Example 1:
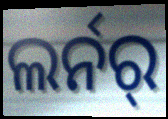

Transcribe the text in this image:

ଲର୍ନର୍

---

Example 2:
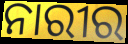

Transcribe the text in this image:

ନାରୀର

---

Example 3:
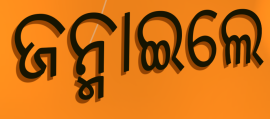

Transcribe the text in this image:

ଜନ୍ମାଇଲେ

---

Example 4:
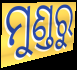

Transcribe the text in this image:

ମୁଣ୍ଡରୁ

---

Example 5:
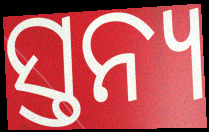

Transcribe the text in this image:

ସ୍ତନ୍ୟ